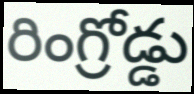
రింగ్రోడ్డు